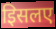
इिसलए